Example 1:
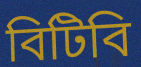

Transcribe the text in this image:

বিটিবি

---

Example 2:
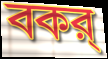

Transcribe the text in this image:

বকর্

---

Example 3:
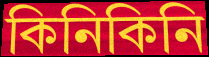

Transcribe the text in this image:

কিনিকিনি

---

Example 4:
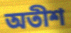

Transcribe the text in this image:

অতীশ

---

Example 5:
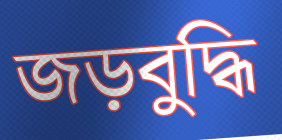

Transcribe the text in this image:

জড়বুদ্ধি